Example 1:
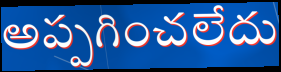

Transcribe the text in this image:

అప్పగించలేదు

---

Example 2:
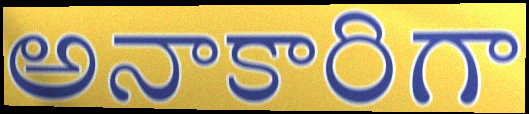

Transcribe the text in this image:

అనాకారిగా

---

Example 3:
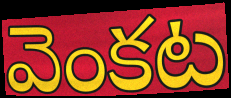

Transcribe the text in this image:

వెంకట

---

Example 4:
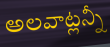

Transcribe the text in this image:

అలవాట్లన్నీ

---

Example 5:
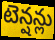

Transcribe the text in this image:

టెన్షన్లు